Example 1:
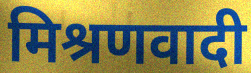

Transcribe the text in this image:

मिश्रणवादी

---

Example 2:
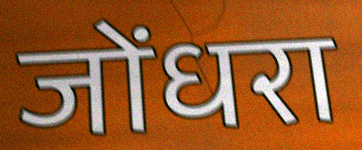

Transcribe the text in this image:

जोंधरा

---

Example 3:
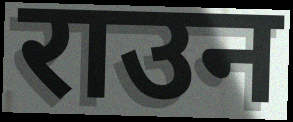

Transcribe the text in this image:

राउन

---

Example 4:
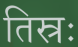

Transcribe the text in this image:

तिस्रः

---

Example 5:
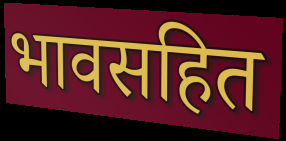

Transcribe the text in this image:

भावसहित